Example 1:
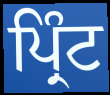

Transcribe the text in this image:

ਪ੍ਰਿੰਟ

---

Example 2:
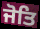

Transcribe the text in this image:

ਜੋਤਿ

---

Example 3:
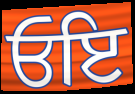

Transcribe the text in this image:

ਓਇ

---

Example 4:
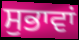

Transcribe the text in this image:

ਸੁਭਾਵਾਂ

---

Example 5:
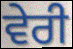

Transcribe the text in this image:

ਵੇਰੀ